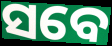
ସବେ